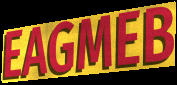
EAGMEB